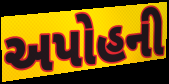
અપોહની